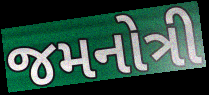
જમનોત્રી